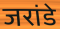
जरांडे